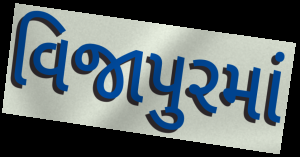
વિજાપુરમાં